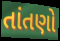
તાંતણો